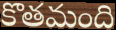
కొతమంది